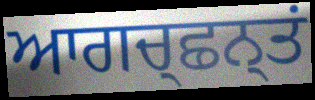
ਆਗਚ੍ਛਨ੍ਤਂ